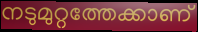
നടുമുറ്റത്തേക്കാണ്